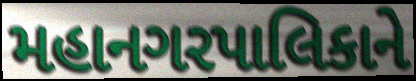
મહાનગરપાલિકાને